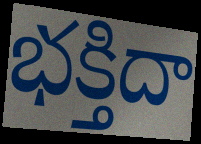
భక్తిదా